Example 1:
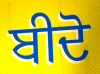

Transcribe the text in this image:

ਬੀਦੋ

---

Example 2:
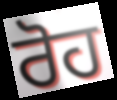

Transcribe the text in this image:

ਰੋਹ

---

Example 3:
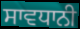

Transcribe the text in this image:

ਸਾਵਧਾਨੀ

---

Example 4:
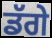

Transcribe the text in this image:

ਡੱਗੇ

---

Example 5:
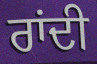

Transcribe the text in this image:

ਰਾਂਦੀ